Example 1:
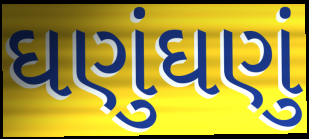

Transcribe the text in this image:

ઘણુંઘણું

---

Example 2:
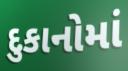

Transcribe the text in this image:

દુકાનોમાં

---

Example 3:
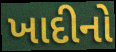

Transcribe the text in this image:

ખાદીનો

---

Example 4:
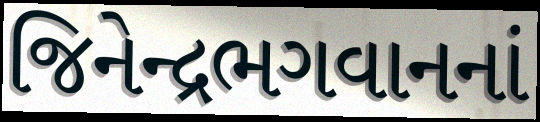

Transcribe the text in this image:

જિનેન્દ્રભગવાનનાં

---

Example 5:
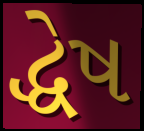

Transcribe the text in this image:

દ્ધેષ